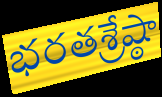
భరతశ్రేష్ఠా